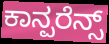
ಕಾನ್ಪರೆನ್ಸ್